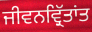
ਜੀਵਨਵ੍ਰਿੱਤਾਂਤ